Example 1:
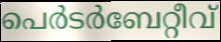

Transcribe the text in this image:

പെർടർബേറ്റീവ്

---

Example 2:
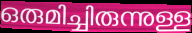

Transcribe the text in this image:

ഒരുമിച്ചിരുന്നുള്ള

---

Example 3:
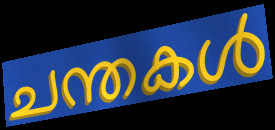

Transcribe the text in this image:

ചന്തകൾ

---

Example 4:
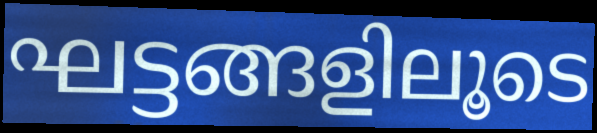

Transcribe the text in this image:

ഘട്ടങ്ങളിലൂടെ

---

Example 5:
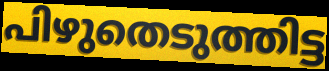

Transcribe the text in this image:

പിഴുതെടുത്തിട്ട